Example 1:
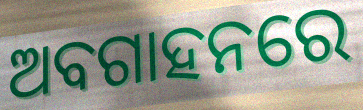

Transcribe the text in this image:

ଅବଗାହନରେ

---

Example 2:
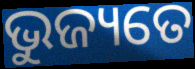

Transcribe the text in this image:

ଭୁଜ୍ୟତେ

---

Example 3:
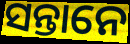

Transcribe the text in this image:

ସନ୍ତାନେ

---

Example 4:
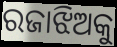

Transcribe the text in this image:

ରଜାଝିଅକୁ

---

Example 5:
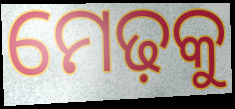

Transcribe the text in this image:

ମେଢ଼କୁ